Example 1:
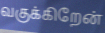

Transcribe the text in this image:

வகுக்கிறேன்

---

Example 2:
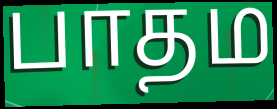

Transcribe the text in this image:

பாதம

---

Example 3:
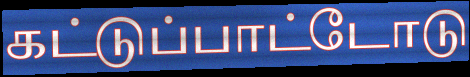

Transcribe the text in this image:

கட்டுப்பாட்டோடு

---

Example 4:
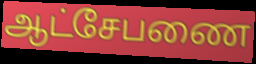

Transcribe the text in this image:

ஆட்சேபணை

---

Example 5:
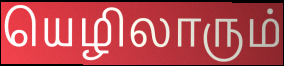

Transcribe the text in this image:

யெழிலாரும்